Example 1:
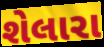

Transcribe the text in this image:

શેલારા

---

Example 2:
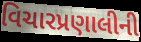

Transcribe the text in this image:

વિચારપ્રણાલીની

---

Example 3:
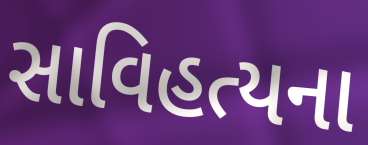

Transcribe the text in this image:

સાવિહત્યના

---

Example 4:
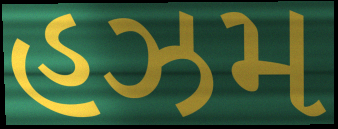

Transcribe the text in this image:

હઝમ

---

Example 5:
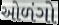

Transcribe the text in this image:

ઓળંગો